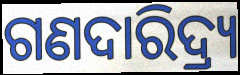
ଗଣଦାରିଦ୍ର୍ୟ